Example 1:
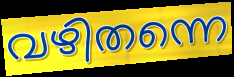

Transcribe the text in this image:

വഴിതന്നെ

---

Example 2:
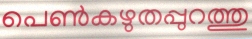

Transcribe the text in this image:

പെൺകഴുതപ്പുറത്തു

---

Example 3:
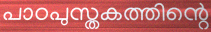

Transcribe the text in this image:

പാഠപുസ്തകത്തിന്റെ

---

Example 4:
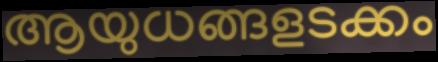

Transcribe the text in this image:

ആയുധങ്ങളടക്കം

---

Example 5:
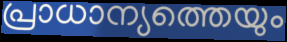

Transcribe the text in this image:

പ്രാധാന്യത്തെയും